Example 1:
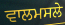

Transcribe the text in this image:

ਵਾਲਮਸਲੇ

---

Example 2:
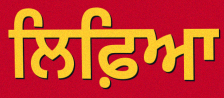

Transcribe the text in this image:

ਲਿਫ਼ਿਆ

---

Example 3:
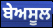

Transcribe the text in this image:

ਬੇਅਸੂਲ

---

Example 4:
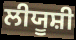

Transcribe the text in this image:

ਲੀਯੂਸ਼ੀ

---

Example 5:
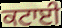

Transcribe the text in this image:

ਕਟਾਈ